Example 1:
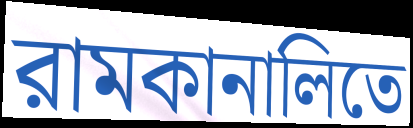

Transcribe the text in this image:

রামকানালিতে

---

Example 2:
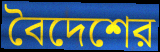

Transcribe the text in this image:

বৈদেশের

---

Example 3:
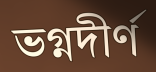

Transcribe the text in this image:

ভগ্নদীর্ণ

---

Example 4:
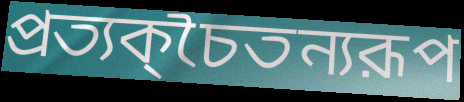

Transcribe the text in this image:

প্রত্যক্‌চৈতন্যরূপ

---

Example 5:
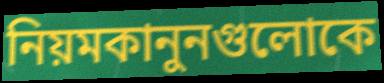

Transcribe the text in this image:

নিয়মকানুনগুলোকে